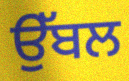
ਉੱਬਲ